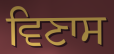
ਵਿਣਾਸ